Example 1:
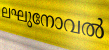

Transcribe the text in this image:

ലഘുനോവൽ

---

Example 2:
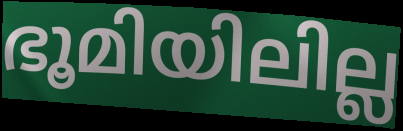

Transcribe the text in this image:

ഭൂമിയിലില്ല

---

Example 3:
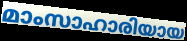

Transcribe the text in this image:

മാംസാഹാരിയായ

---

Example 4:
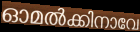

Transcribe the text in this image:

ഓമൽക്കിനാവേ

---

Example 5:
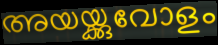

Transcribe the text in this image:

അയയ്ക്കുവോളം